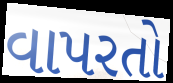
વાપરતો